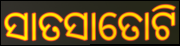
ସାତସାତୋଟି